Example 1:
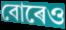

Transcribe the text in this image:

বোৰেও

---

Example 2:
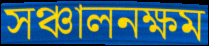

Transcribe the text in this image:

সঞ্চালনক্ষম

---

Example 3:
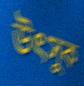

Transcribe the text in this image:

উৎসুক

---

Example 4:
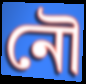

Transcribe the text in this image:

নৌ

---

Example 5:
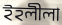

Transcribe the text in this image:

ইহলীলা